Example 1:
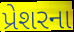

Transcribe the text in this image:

પ્રેશરના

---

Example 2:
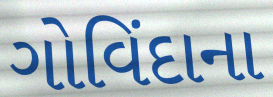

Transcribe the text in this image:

ગોવિંદાના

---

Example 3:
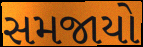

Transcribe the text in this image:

સમજાયો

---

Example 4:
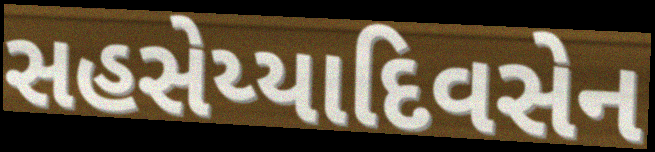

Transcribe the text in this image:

સહસેય્યાદિવસેન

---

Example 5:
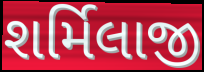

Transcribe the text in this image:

શર્મિલાજી